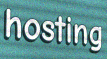
hosting